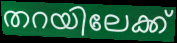
തറയിലേക്ക്